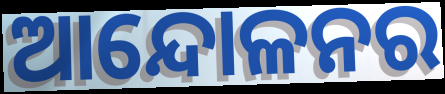
ଆନ୍ଦୋଳନର